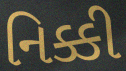
નિક્કી